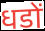
धडों